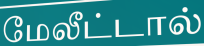
மேலீட்டால்